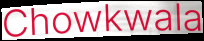
Chowkwala